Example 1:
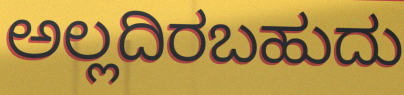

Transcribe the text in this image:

ಅಲ್ಲದಿರಬಹುದು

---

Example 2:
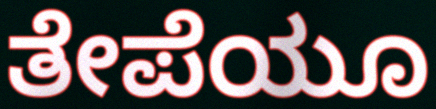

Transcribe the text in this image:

ತೇಪೆಯೂ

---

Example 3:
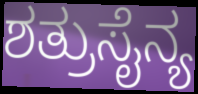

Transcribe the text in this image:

ಶತ್ರುಸೈನ್ಯ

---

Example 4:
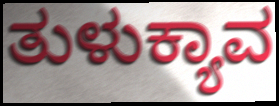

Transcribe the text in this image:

ತುಳುಕ್ಯಾವ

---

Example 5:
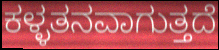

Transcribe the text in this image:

ಕಳ್ಳತನವಾಗುತ್ತದೆ